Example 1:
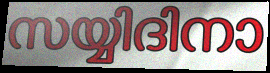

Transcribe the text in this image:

സയ്യിദിനാ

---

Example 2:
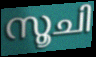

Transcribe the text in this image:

സൂചി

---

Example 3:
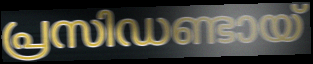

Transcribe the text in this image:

പ്രസിഡണ്ടായ്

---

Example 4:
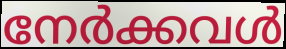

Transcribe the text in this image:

നേർക്കവൾ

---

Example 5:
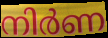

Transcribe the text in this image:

നിർണ